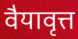
वैयावृत्त